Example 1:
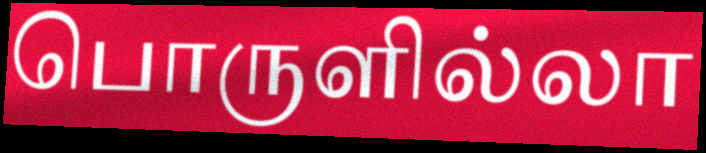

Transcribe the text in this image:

பொருளில்லா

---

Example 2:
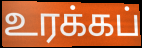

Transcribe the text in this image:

உரக்கப்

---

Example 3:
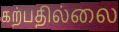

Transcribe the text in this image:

கற்பதில்லை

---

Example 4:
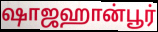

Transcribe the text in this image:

ஷாஜஹான்பூர்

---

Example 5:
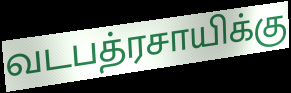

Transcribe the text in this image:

வடபத்ரசாயிக்கு